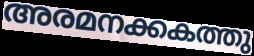
അരമനക്കകത്തു